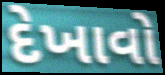
દેખાવો